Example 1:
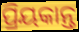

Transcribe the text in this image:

ପ୍ରିୟକାନ୍ତ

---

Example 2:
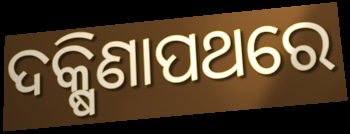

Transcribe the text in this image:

ଦକ୍ଷିଣାପଥରେ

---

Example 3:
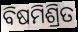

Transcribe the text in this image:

ବିଷମିଶ୍ରିତ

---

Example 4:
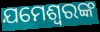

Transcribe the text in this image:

ଯମେଶ୍ୱରଙ୍କ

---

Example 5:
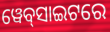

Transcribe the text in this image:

ୱେବ୍‍ସାଇଟରେ